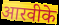
आरवीके